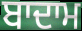
ਬਾਦਾਮ